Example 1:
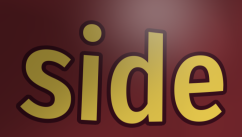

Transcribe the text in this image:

side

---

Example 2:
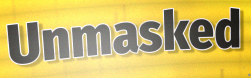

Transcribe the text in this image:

Unmasked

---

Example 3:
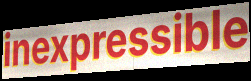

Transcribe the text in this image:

inexpressible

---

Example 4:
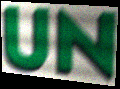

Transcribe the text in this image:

UN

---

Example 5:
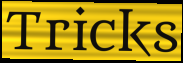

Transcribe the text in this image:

Tricks